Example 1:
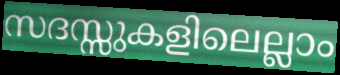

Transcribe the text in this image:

സദസ്സുകളിലെല്ലാം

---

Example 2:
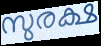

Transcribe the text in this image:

സുരക്ഷ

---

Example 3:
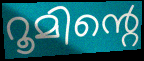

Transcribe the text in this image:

റൂമിന്റെ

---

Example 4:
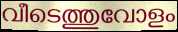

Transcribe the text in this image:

വീടെത്തുവോളം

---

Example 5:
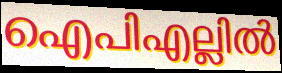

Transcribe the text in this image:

ഐപിഎല്ലിൽ